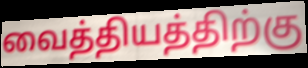
வைத்தியத்திற்கு